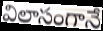
విలాసంగానే